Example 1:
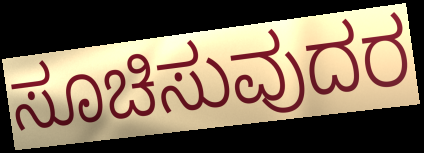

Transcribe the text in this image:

ಸೂಚಿಸುವುದರ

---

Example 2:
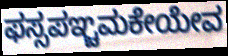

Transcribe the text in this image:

ಫಸ್ಸಪಞ್ಚಮಕೇಯೇವ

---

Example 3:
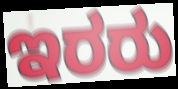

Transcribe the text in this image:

ಇರರು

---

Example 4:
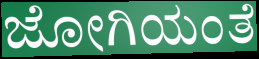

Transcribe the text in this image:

ಜೋಗಿಯಂತೆ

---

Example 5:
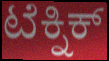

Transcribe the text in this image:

ಟೆಕ್ನಿಕ್